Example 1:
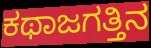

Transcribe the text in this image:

ಕಥಾಜಗತ್ತಿನ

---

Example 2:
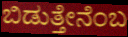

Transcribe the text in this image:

ಬಿಡುತ್ತೇನೆಂಬ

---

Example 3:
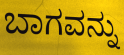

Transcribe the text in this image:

ಬಾಗವನ್ನು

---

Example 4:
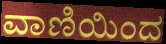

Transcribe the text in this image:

ವಾಣಿಯಿಂದ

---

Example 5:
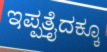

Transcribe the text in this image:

ಇಪ್ಪತ್ತೈದಕ್ಕೂ